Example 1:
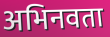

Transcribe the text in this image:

अभिनवता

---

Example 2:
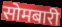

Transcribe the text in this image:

सोमबारी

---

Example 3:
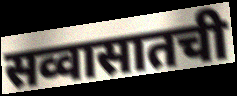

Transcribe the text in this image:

सव्वासातची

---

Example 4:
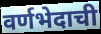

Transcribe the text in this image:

वर्णभेदाची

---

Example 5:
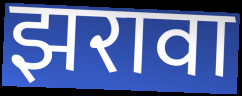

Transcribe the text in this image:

झरावा